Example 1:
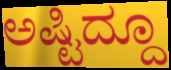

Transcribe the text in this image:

ಅಷ್ಟಿದ್ದೂ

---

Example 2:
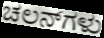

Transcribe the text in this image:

ಚಲನ್‌ಗಳು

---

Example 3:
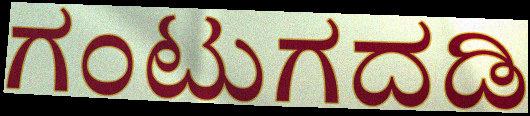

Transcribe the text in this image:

ಗಂಟುಗದಡಿ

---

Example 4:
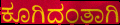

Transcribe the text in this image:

ಕೂಗಿದಂತಾಗಿ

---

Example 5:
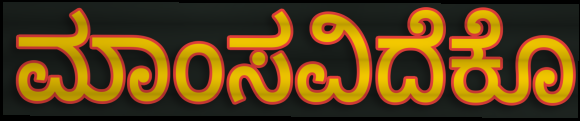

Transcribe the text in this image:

ಮಾಂಸವಿದೆಕೊ